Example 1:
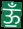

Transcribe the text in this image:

ऊँ॒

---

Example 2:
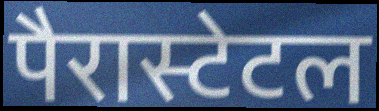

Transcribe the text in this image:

पैरास्टेटल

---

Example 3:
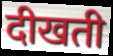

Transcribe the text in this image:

दीखती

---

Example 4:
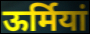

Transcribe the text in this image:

ऊर्मियां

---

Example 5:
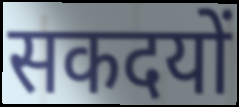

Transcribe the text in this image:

सकदयों